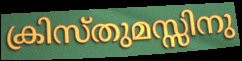
ക്രിസ്തുമസ്സിനു